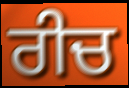
ਰੀਚ